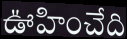
ఊహించేది